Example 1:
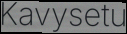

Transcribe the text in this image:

Kavysetu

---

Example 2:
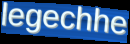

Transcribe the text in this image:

legechhe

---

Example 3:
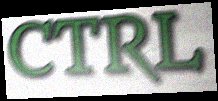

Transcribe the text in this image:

CTRL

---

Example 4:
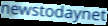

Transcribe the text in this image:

newstodaynet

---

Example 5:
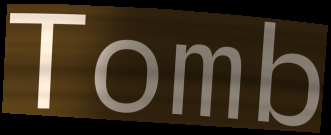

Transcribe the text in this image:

Tomb